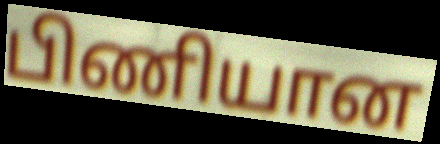
பிணியான